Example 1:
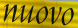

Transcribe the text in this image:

nuovo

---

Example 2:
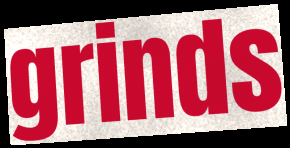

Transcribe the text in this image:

grinds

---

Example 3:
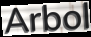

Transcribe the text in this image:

Arbol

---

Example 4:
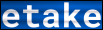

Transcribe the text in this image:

etake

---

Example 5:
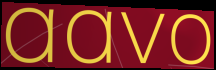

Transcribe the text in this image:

aavo